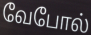
வேபோல்